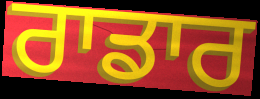
ਰਾਡਾਰ